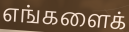
எங்களைக்